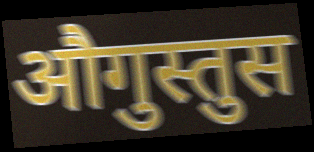
औगुस्तुस